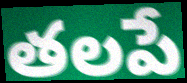
తలపే